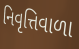
નિવૃત્તિવાળા